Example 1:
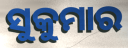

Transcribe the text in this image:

ସୁକୁମାର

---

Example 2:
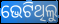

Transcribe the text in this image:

ଭେଟିଥିଲୁ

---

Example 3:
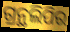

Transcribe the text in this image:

ଗ୍ରନ୍ଥଲିପିର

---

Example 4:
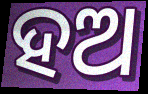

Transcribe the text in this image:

ହଅ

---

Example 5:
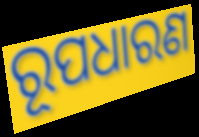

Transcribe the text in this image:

ରୂପଧାରଣ